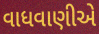
વાધવાણીએ